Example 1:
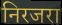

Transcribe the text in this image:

निरजरा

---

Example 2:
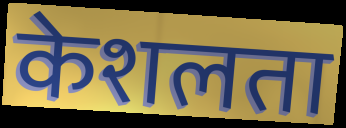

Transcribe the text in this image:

केशलता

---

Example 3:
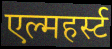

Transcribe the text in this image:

एल्महर्स्ट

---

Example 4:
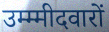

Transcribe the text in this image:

उम्म्मीदवारों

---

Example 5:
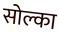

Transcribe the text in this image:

सोल्का